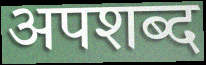
अपशब्‍द